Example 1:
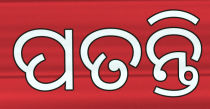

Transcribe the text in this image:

ପତନ୍ତି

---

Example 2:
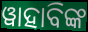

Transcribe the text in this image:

ୱାହାବିଙ୍କ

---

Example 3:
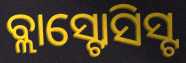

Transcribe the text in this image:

ବ୍ଲାସ୍ଟୋସିସ୍ଟ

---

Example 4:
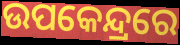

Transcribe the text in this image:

ଉପକେନ୍ଦ୍ରରେ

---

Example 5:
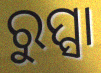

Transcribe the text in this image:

ରୁପ୍ସା